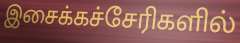
இசைக்கச்சேரிகளில்